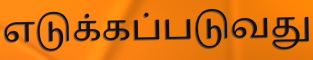
எடுக்கப்படுவது